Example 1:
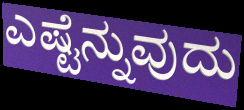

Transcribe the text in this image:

ಎಷ್ಟೆನ್ನುವುದು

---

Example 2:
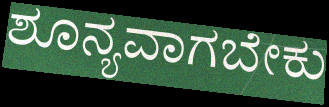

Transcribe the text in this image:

ಶೂನ್ಯವಾಗಬೇಕು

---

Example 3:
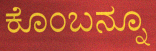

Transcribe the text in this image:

ಕೊಂಬನ್ನೂ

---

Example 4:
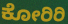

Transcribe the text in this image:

ಕೋರಿರಿ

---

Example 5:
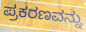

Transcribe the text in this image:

ಪ್ರಕರಣವನ್ನು